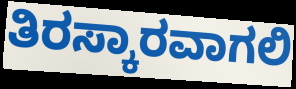
ತಿರಸ್ಕಾರವಾಗಲಿ